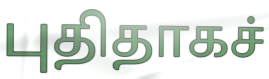
புதிதாகச்